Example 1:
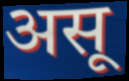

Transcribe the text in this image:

असू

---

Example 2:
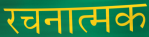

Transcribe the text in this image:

रचनात्मक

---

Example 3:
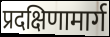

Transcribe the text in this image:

प्रदक्षिणामार्ग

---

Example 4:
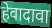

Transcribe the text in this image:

हेवादावा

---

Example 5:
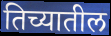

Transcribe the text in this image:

तिच्यातील